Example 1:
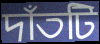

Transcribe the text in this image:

দাঁতটি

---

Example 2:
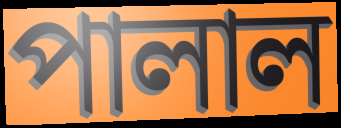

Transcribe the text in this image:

পালাল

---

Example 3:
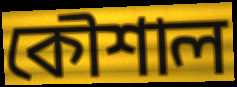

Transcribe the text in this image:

কৌশাল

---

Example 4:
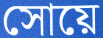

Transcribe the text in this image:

সোয়ে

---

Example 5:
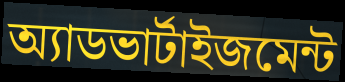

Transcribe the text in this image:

অ্যাডভার্টাইজমেন্ট